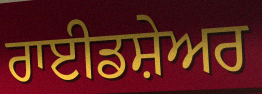
ਰਾਈਡਸ਼ੇਅਰ